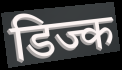
डिज्क